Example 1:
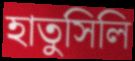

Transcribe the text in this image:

হাতুসিলি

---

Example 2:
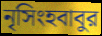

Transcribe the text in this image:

নৃসিংহবাবুর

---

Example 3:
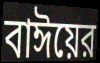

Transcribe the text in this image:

বাঈয়ের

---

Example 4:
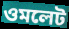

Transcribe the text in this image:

ওমলেট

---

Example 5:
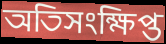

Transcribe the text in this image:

অতিসংক্ষিপ্ত